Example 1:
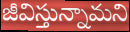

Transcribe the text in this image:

జీవిస్తున్నామని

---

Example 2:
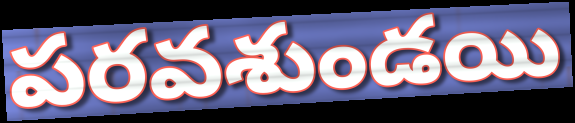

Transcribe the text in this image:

పరవశుండయి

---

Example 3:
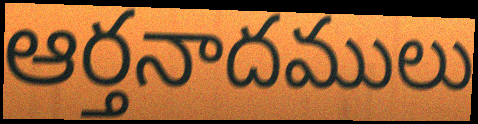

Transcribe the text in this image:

ఆర్తనాదములు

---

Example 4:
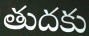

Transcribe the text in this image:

తుదకు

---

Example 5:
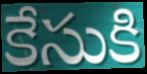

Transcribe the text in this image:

కేసుకి